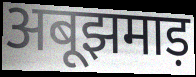
अबूझमाड़